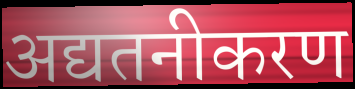
अद्यतनीकरण